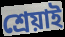
শ্ৰেয়াই